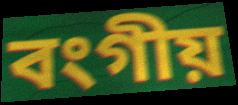
বংগীয়